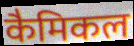
कैमिकल